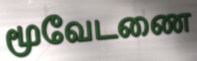
மூவேடணை